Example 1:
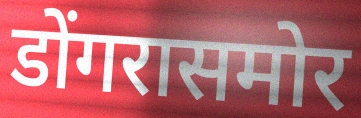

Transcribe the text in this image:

डोंगरासमोर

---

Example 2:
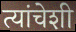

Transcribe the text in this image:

त्यांचेशी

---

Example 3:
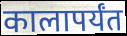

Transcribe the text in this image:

कालापर्यंत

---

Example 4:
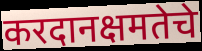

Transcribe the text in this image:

करदानक्षमतेचे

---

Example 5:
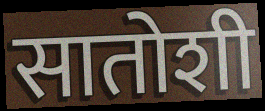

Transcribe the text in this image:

सातोशी